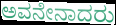
ಅವನೇನಾದರು